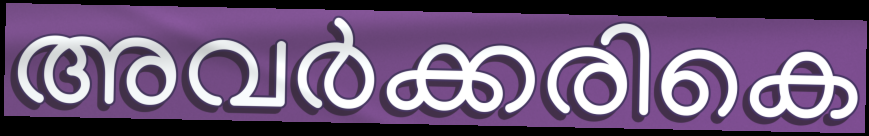
അവർക്കരികെ